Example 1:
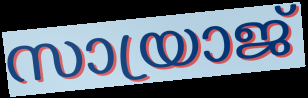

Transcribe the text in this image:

സായ്രാജ്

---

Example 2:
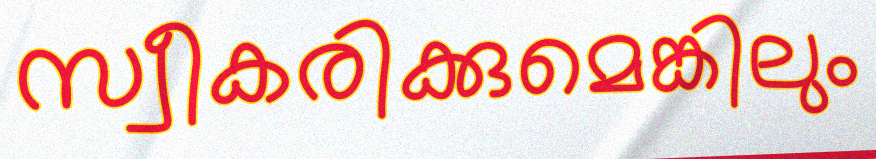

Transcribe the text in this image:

സ്വീകരിക്കുമെങ്കിലും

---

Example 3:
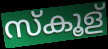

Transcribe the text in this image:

സ്കൂള്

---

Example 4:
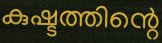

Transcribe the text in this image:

കുഷ്ടത്തിന്റെ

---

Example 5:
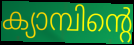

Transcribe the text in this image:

ക്യാമ്പിന്റെ